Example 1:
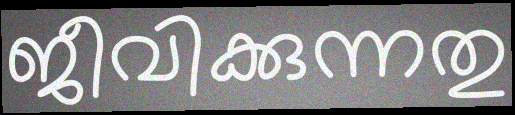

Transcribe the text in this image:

ജീവിക്കുന്നതു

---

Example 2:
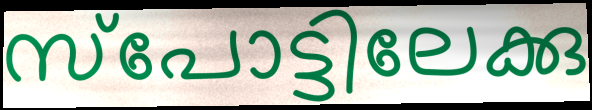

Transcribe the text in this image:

സ്പോട്ടിലേക്കു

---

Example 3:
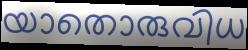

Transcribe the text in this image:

യാതൊരുവിധ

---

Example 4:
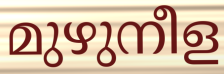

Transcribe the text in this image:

മുഴുനീള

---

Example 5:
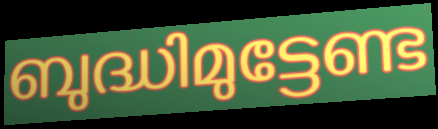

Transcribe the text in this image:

ബുദ്ധിമുട്ടേണ്ട